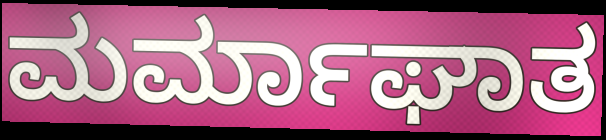
ಮರ್ಮಾಘಾತ